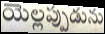
యెల్లప్పుడును